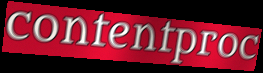
contentproc